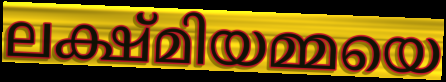
ലക്ഷ്മിയമ്മയെ